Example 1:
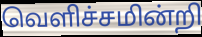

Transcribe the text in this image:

வெளிச்சமின்றி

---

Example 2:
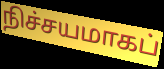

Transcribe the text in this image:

நிச்சயமாகப்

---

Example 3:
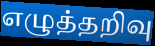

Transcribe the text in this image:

எழுத்தறிவு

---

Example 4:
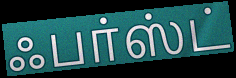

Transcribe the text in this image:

ஃபர்ஸ்ட்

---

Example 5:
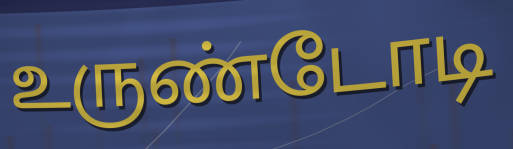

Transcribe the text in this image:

உருண்டோடி